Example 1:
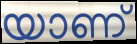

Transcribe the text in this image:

യാണ്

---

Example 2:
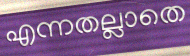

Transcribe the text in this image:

എന്നതല്ലാതെ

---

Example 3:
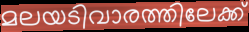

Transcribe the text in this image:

മലയടിവാരത്തിലേക്ക്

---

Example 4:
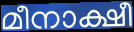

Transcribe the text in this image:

മീനാക്ഷീ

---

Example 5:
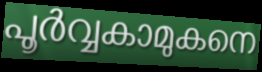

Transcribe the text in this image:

പൂർവ്വകാമുകനെ